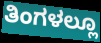
ತಿಂಗಳಲ್ಲೂ